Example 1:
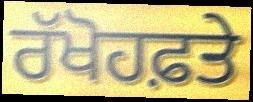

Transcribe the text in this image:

ਰੱਖੋਹਫ਼ਤੇ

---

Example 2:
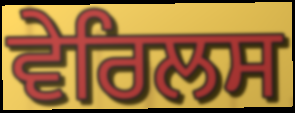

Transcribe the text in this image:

ਵੇਰਿਲਸ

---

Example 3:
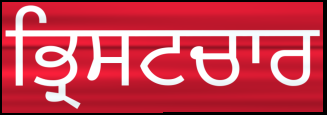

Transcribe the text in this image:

ਭ੍ਰਿਸਟਚਾਰ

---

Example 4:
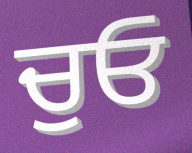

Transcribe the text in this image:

ਚੁਓ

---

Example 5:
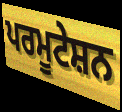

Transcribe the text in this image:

ਪਰਮੂਟੇਸ਼ਨ